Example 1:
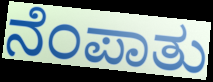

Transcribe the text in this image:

ನೆಂಪಾತು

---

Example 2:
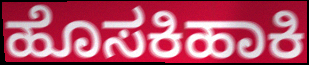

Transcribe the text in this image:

ಹೊಸಕಿಹಾಕಿ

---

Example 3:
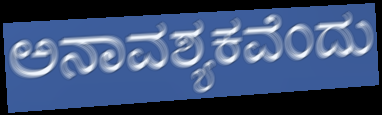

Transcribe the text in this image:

ಅನಾವಶ್ಯಕವೆಂದು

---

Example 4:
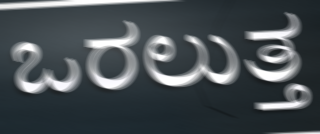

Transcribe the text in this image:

ಒರಲುತ್ತ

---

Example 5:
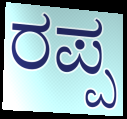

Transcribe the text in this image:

ರಪ್ಪ